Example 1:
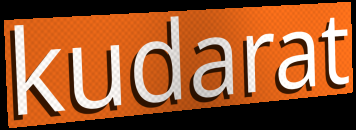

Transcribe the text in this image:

kudarat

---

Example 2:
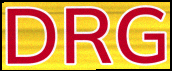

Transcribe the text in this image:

DRG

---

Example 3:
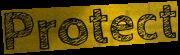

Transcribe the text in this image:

Protect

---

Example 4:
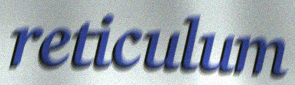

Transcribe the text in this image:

reticulum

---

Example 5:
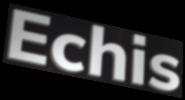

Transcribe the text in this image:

Echis